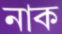
নাক